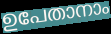
ഉപേതാനാം